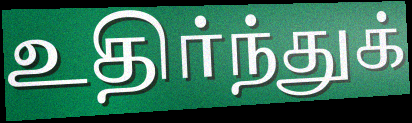
உதிர்ந்துக்